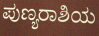
ಪುಣ್ಯರಾಶಿಯ